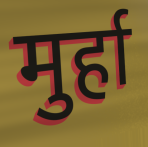
मुर्हा